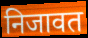
निजावत